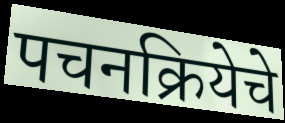
पचनक्रियेचे